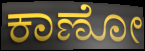
ಕಾಣೋ